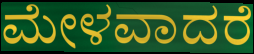
ಮೇಳವಾದರೆ